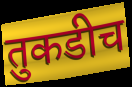
तुकडीच